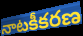
నాటకీకరణ